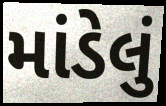
માંડેલું